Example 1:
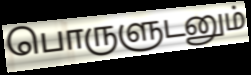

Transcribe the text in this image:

பொருளுடனும்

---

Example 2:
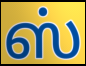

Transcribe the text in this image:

ஸ்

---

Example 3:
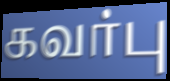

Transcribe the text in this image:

கவர்பு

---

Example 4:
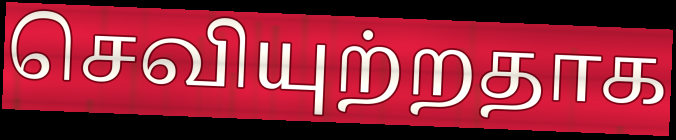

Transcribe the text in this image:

செவியுற்றதாக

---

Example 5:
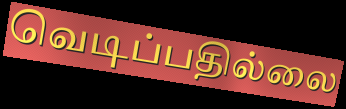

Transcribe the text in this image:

வெடிப்பதில்லை